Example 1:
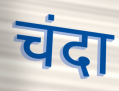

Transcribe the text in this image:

चंदा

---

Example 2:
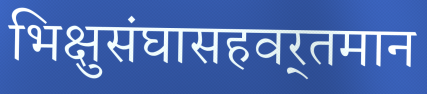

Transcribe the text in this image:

भिक्षुसंघासहवर्तमान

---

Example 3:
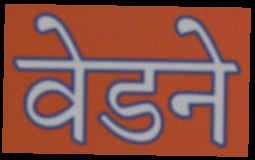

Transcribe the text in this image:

वेडने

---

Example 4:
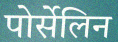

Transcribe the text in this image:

पोर्सेलिन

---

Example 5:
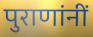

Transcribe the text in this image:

पुराणांनीं